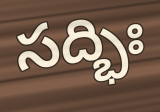
సద్భిః